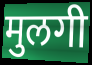
मुलगी